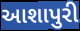
આશાપુરી